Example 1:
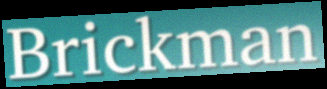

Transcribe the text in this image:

Brickman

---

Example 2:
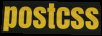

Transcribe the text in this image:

postcss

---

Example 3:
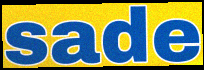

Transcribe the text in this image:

sade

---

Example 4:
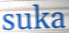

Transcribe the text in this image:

suka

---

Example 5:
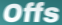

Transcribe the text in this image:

Offs